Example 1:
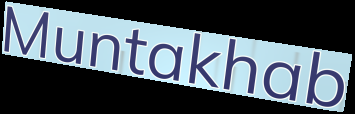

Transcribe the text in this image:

Muntakhab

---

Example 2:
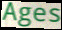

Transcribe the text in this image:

Ages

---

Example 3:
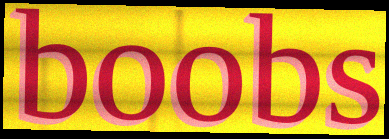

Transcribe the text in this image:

boobs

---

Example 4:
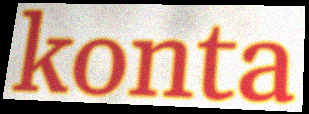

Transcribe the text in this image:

konta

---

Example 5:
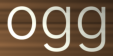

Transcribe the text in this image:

ogg